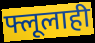
फ्लूलाही